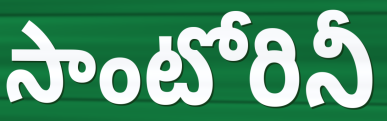
సాంటోరినీ